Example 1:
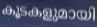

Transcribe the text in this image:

കൂടകളുമായി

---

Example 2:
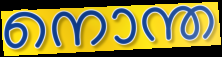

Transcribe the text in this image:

നൊന്ത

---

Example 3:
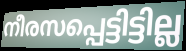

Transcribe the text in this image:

നീരസപ്പെട്ടിട്ടില്ല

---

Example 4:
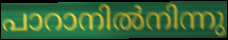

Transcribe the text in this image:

പാറാനിൽനിന്നു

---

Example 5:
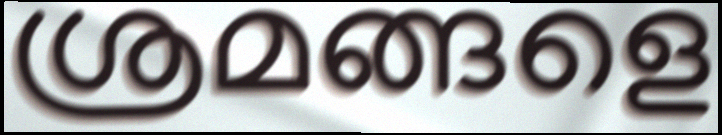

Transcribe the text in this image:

ശ്രമങ്ങളെ